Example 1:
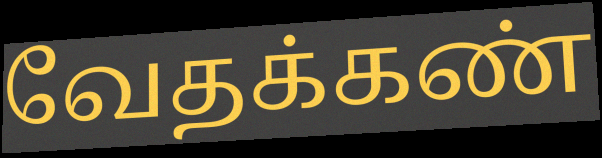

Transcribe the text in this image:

வேதக்கண்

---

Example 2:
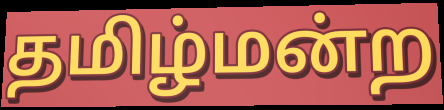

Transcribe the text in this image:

தமிழ்மன்ற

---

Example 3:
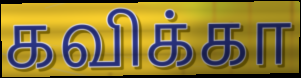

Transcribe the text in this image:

கவிக்கா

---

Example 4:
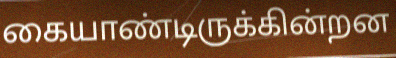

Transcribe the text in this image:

கையாண்டிருக்கின்றன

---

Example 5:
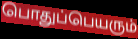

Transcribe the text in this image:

பொதுப்பெயரும்